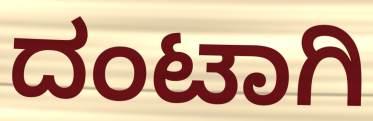
ದಂಟಾಗಿ